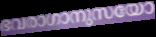
ഭവരാഗാനുസയോ